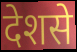
देशसे